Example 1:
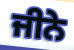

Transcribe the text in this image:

ਜੀਨੇ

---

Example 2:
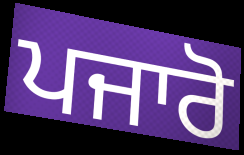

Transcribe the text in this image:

ਪਜਾਰੋ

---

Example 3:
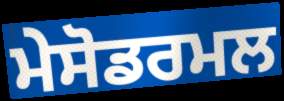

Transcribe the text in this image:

ਮੇਸੋਡਰਮਲ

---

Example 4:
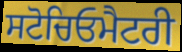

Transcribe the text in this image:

ਸਟੋਚਿਓਮੈਟਰੀ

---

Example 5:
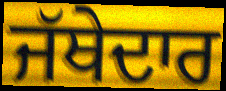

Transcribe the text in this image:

ਜੱਥੇਦਾਰ